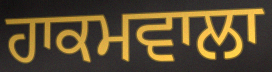
ਹਾਕਮਵਾਲਾ